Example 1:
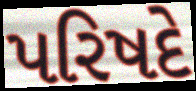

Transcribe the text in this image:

પરિષદે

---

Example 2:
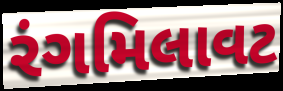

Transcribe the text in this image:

રંગમિલાવટ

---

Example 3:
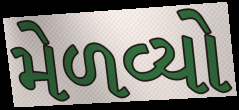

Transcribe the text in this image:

મેળવ્યો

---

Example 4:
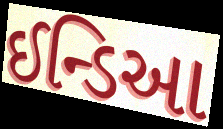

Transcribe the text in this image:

ઈન્ડિઆ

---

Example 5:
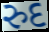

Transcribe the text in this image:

રુદ